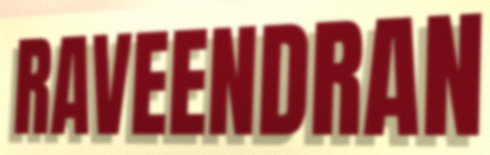
RAVEENDRAN